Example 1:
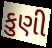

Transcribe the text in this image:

કુણી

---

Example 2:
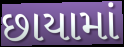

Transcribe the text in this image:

છાયામાં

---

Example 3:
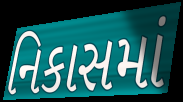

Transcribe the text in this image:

નિકાસમાં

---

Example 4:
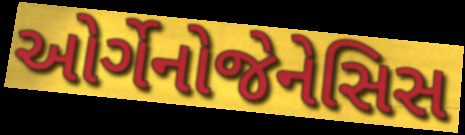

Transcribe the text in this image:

ઓર્ગેનોજેનેસિસ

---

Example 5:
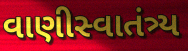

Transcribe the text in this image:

વાણીસ્વાતંત્ર્ય